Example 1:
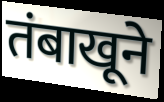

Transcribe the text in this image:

तंबाखूने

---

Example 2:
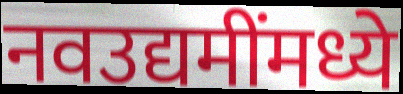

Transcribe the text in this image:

नवउद्यमींमध्ये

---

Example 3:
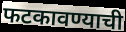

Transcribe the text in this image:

फटकावण्याची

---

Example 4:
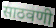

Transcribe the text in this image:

साठवणी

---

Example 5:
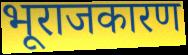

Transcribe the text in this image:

भूराजकारण